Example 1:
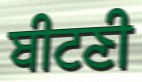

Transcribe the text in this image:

ਬੀਟਣੀ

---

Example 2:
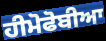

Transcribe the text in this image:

ਹੀਮੋਫੋਬੀਆ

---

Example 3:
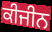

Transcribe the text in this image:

ਕੀਜੀਨ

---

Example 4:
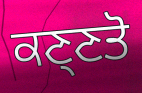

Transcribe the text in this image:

ਕਣ੍ਣਤੋ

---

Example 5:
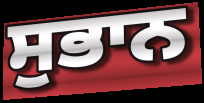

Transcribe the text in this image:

ਸੁਭਾਨ